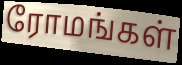
ரோமங்கள்